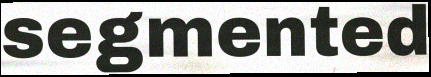
segmented